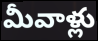
మీవాళ్లు